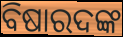
ବିଷାରଦଙ୍କ